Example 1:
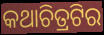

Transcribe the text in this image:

କଥାଚିତ୍ରଟିର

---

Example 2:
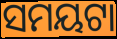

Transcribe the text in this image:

ସମୟଟା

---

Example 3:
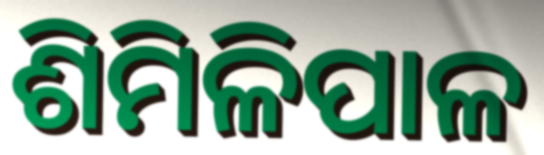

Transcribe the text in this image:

ଶିମିଳିପାଳ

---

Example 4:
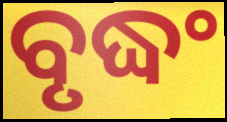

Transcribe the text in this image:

ବୃଦ୍ଧଂ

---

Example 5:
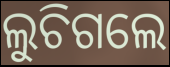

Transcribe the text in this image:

ଲୁଚିଗଲେ